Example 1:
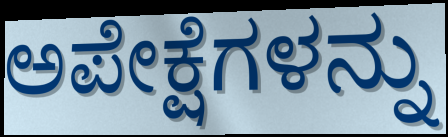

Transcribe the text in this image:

ಅಪೇಕ್ಷೆಗಳನ್ನು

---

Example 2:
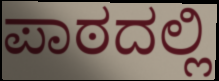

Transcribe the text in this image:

ಪಾಠದಲ್ಲಿ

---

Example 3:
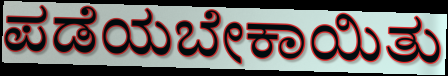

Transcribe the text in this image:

ಪಡೆಯಬೇಕಾಯಿತು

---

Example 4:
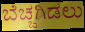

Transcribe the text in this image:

ಬೆಚ್ಚಗಿಡಲು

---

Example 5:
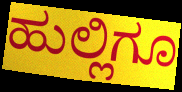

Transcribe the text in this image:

ಹುಲ್ಲಿಗೂ